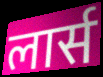
लार्स